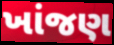
ખાંજણ